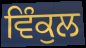
ਵਿੰਕੁਲ